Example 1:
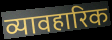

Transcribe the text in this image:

व्यावहारिक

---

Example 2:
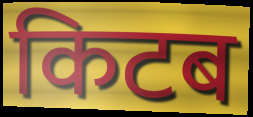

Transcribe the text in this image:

किटब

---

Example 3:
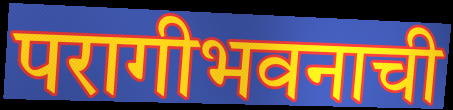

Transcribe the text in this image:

परागीभवनाची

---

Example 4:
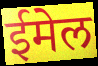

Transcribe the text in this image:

ईमेल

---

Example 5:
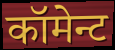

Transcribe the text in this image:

कॉमेन्ट